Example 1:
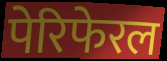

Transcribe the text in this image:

पेरिफेरल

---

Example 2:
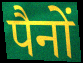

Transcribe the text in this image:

पैनों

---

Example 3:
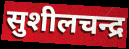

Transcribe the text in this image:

सुशीलचन्द्र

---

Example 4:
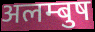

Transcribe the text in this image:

अलम्बुष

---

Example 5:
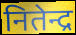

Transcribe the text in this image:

नितेन्द्र